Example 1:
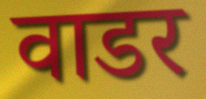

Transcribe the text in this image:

वाडर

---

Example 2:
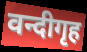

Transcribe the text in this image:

वन्दीगृह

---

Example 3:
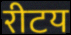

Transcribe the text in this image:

रीटय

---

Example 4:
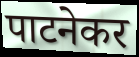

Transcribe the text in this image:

पाटनेकर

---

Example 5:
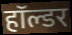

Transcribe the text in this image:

हॉल्डर